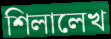
শিলালেখ